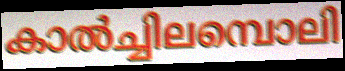
കാൽച്ചിലമ്പൊലി